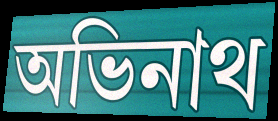
অভিনাথ